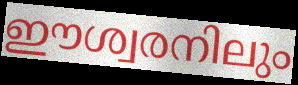
ഈശ്വരനിലും